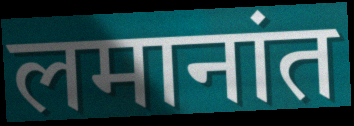
लमानांत